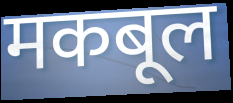
मकबूल